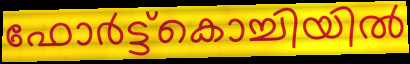
ഫോർട്ട്കൊച്ചിയിൽ